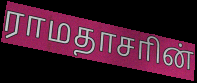
ராமதாசரின்